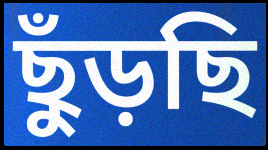
ছুঁড়ছি